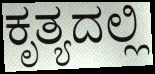
ಕೃತ್ಯದಲ್ಲಿ